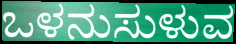
ಒಳನುಸುಳುವ